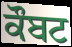
ਕੌਬਟ